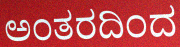
ಅಂತರದಿಂದ